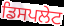
ਡਿਸਪਲੇਟ